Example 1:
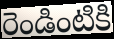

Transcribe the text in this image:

రెండింటికి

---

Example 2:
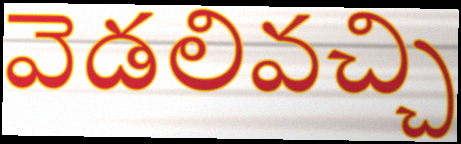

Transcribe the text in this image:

వెడలివచ్చి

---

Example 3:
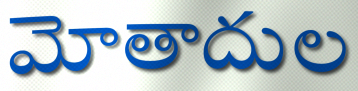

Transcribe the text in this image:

మోతాదుల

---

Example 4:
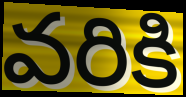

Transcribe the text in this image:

వరికి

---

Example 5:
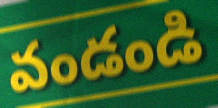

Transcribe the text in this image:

వండండి